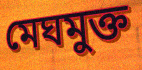
মেঘমুক্ত